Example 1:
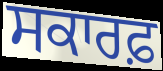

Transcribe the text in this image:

ਸਕਾਰਫ਼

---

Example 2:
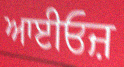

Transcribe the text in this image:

ਆਈਓਜ਼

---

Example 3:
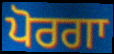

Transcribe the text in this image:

ਪੋਰਗਾ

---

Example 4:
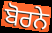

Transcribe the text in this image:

ਬੋਰਨੇ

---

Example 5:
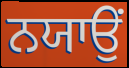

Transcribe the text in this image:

ਨਯਾਉਂ